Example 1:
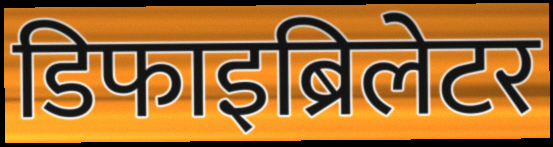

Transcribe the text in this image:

डिफाइब्रिलेटर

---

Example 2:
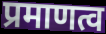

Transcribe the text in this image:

प्रमाणत्व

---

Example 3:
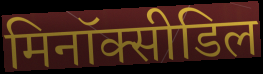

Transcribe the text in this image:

मिनॉक्सीडिल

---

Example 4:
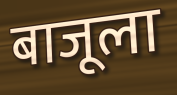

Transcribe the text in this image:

बाजूला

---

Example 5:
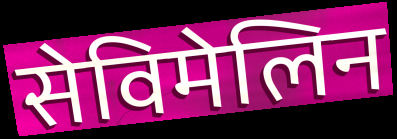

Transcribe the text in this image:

सेविमेलिन